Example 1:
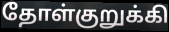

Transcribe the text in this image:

தோள்குறுக்கி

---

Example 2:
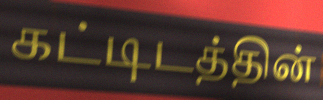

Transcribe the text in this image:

கட்டிடத்தின்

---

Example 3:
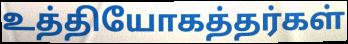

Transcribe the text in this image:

உத்தியோகத்தர்கள்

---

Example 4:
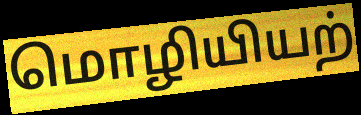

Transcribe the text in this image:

மொழியியற்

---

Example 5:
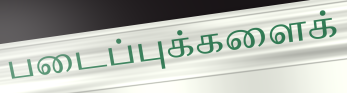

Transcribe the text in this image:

படைப்புக்களைக்